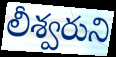
లీశ్వరుని